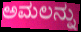
ಅಮಲನ್ನು